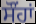
ਸੌਂਹਾਂ